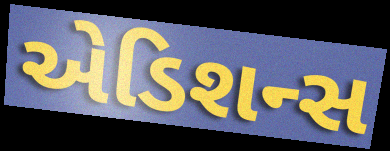
એડિશન્સ